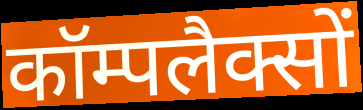
कॉम्पलैक्सों